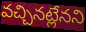
వచ్చినట్లేనని